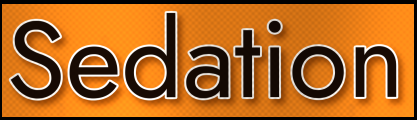
Sedation